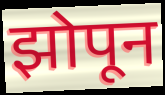
झोपून